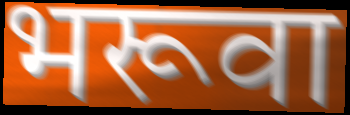
भरूवा